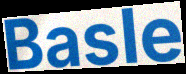
Basle